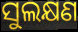
ସୁଲକ୍ଷଣ